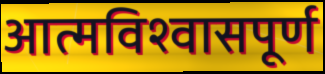
आत्मविश्वासपूर्ण